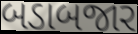
બડાબજાર